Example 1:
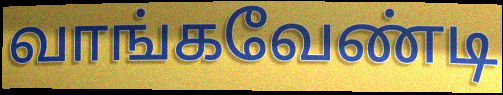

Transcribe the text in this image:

வாங்கவேண்டி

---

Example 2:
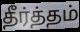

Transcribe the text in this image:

தீர்த்தம்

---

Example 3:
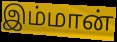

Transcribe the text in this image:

இம்மான்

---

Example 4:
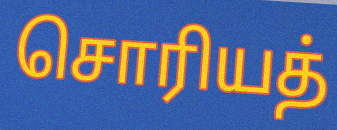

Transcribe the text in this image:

சொரியத்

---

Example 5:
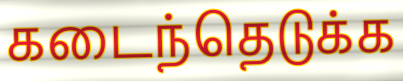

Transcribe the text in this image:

கடைந்தெடுக்க